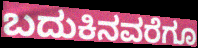
ಬದುಕಿನವರೆಗೂ